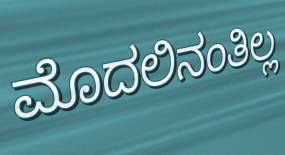
ಮೊದಲಿನಂತಿಲ್ಲ